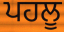
ਪਹਲੂ